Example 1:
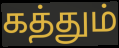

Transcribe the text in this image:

கத்தும்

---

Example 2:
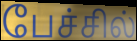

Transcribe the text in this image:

பேச்சில்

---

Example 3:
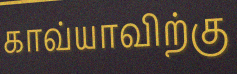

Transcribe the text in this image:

காவ்யாவிற்கு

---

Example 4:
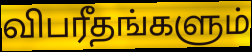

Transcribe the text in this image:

விபரீதங்களும்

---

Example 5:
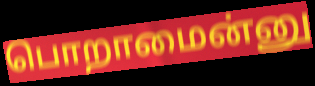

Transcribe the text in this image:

பொறாமைன்னு